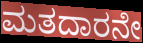
ಮತದಾರನೇ